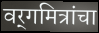
वर्गमित्रांचा